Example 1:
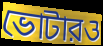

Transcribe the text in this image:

ভোটারও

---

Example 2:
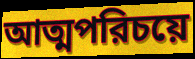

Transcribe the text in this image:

আত্মপরিচয়ে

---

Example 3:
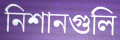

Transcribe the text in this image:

নিশানগুলি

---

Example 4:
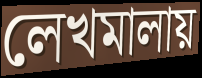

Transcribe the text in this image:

লেখমালায়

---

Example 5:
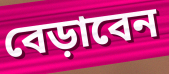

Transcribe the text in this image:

বেড়াবেন